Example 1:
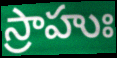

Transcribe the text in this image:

స్రాహుః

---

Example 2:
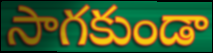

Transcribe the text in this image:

సాగకుండా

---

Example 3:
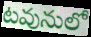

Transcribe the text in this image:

టవునులో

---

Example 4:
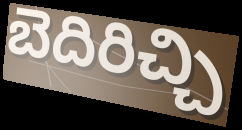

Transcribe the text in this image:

బెదిరిచ్చి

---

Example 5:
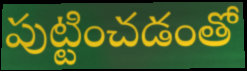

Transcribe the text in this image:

పుట్టించడంతో